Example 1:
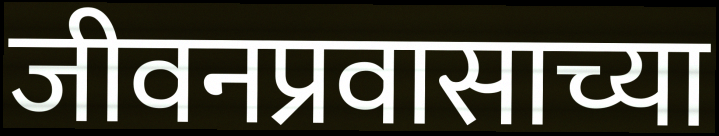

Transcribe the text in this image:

जीवनप्रवासाच्या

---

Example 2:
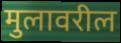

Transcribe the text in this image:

मुलावरील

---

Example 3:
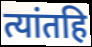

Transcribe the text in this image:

त्यांतहि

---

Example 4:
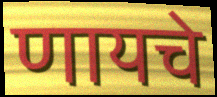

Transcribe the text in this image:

णायचे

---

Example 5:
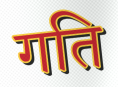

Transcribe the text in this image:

गति